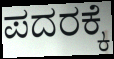
ಪದರಕ್ಕೆ